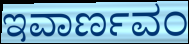
ಇವಾರ್ಣವಂ